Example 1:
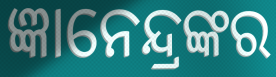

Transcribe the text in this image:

ଜ୍ଞାନେନ୍ଦ୍ରଙ୍କର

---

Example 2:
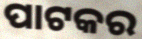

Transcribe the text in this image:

ପାଟକର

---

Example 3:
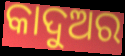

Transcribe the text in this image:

କାଦୁଅର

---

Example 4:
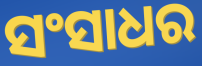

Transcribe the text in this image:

ସଂସାଧର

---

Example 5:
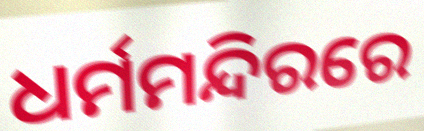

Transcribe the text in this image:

ଧର୍ମମନ୍ଦିରରେ